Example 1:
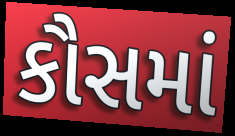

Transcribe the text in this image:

કૌસમાં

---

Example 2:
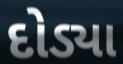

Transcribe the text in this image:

દોડ્યા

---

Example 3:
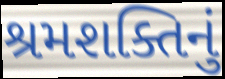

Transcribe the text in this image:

શ્રમશક્તિનું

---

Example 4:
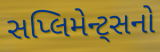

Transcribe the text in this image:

સપ્લિમેન્ટ્સનો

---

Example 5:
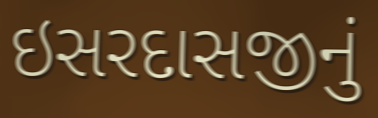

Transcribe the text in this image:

ઇસરદાસજીનું